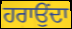
ਹਰਾਉਂਦਾ